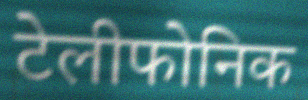
टेलीफोनिक